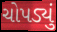
ચોપડ્યું